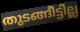
തുടങ്ങീട്ടില്ല